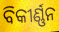
ବିକୀର୍ଣ୍ଣନ